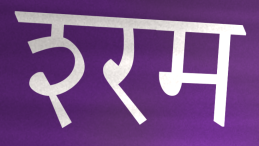
श्रम